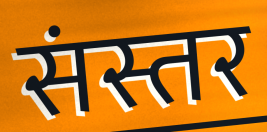
संस्तर